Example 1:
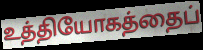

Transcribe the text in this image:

உத்தியோகத்தைப்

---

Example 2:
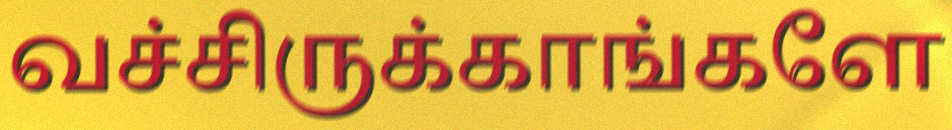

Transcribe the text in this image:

வச்சிருக்காங்களே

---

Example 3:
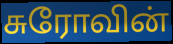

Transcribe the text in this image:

சுரோவின்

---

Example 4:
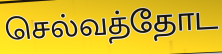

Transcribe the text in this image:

செல்வத்தோட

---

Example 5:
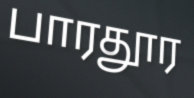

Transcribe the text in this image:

பாரதூர